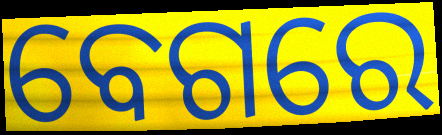
ବେଗରେ